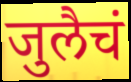
जुलैचं